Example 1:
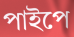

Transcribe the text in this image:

পাইপে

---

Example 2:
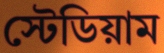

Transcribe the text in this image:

স্টেডিয়াম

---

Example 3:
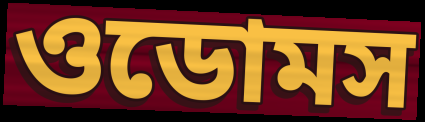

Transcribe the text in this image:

ওডোমস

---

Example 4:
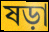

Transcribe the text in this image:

ষড়া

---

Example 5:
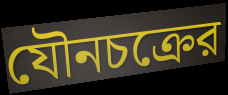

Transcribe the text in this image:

যৌনচক্রের